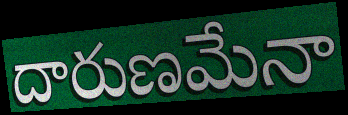
దారుణమేనా